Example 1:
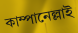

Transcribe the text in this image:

কাম্পানেল্লাই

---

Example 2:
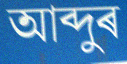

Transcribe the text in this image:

আব্দুৰ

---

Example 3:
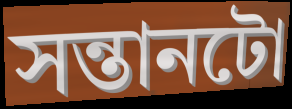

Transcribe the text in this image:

সন্তানটো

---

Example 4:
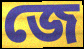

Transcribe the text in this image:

জে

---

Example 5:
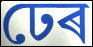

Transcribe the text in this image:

ঢেৰ